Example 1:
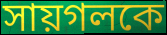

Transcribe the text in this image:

সায়গলকে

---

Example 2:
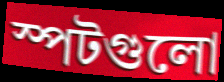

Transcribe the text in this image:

স্পটগুলো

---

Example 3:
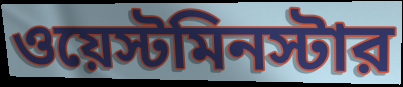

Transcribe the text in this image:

ওয়েস্টমিনস্টার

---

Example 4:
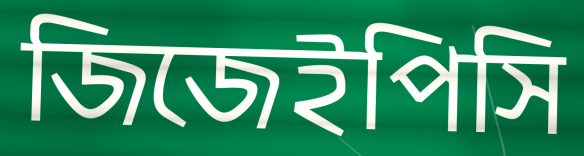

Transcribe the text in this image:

জিজেইপিসি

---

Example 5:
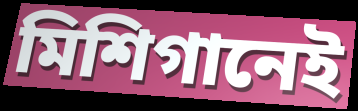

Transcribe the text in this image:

মিশিগানেই